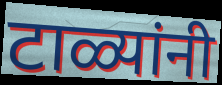
टाळ्यांनी